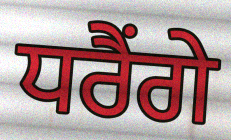
ਧਰੈਂਗੇ